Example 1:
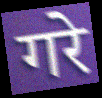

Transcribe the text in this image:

गरे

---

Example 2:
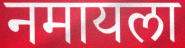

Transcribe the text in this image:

नमायला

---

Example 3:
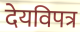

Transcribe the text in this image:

देयविपत्र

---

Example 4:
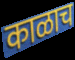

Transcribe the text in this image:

काळाच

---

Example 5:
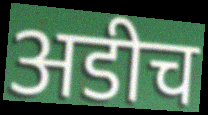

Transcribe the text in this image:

अडीच